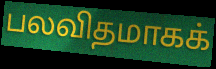
பலவிதமாகக்